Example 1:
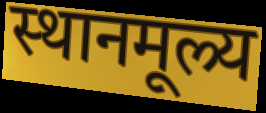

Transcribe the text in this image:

स्थानमूल्य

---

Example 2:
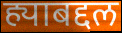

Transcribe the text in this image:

ह्याबद्दल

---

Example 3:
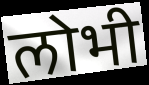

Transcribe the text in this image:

लोभी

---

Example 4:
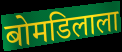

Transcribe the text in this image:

बोमडिलाला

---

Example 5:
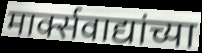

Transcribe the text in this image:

मार्क्सवाद्यांच्या